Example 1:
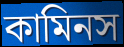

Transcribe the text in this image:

কামিনস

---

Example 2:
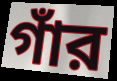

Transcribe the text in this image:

গাঁর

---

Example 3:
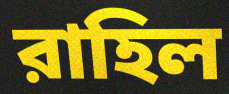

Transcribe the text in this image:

রাহিল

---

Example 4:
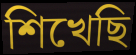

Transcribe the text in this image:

শিখেছি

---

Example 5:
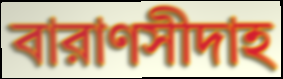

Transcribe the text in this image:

বারাণসীদাহ